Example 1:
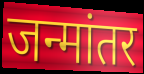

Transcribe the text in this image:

जन्मांतर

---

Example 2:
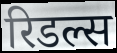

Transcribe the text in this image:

रिडल्स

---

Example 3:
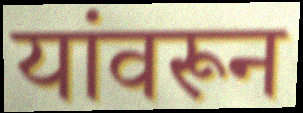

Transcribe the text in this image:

यांवरून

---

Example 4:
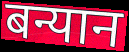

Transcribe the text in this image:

बन्यान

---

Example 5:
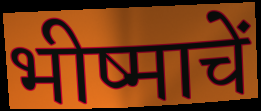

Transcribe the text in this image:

भीष्माचें